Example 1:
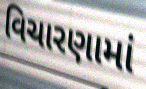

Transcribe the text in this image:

વિચારણામાં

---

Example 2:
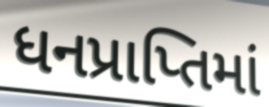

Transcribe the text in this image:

ધનપ્રાપ્તિમાં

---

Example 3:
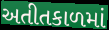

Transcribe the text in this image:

અતીતકાળમાં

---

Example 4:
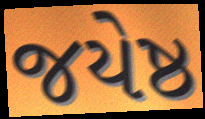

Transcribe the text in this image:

જયેષ્ઠ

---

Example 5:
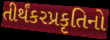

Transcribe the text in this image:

તીર્થંકરપ્રકૃતિનો